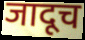
जादूच